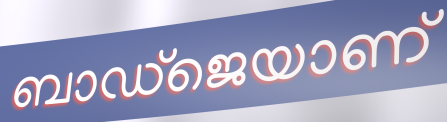
ബാഡ്ജെയാണ്